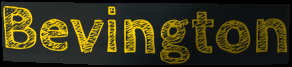
Bevington